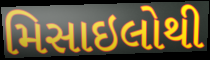
મિસાઇલોથી